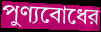
পুণ্যবোধের